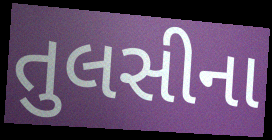
તુલસીના